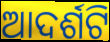
ଆଦର୍ଶଟି